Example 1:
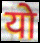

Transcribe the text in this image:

यो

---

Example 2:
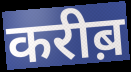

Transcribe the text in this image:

करीब़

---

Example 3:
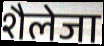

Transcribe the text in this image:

शैलेजा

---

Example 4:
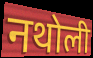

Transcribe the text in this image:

नथोली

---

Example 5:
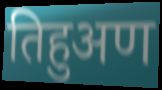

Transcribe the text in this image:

तिहुअण